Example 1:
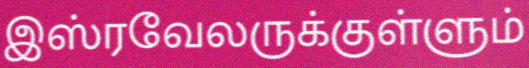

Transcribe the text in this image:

இஸ்ரவேலருக்குள்ளும்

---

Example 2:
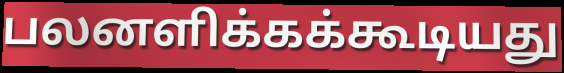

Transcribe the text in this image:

பலனளிக்கக்கூடியது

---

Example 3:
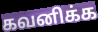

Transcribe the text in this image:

கவனிக்க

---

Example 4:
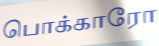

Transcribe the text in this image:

பொக்காரோ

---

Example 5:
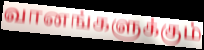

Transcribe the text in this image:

வானங்களுக்கும்